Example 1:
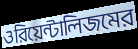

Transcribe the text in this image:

ওরিয়েন্টালিজমের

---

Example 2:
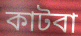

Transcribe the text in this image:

কাটবা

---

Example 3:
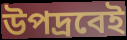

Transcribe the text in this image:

উপদ্রবেই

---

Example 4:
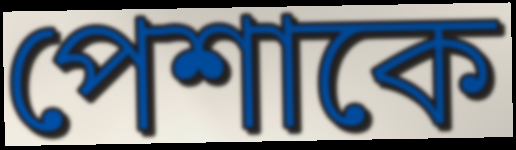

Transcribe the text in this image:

পেশাকে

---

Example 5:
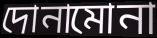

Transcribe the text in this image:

দোনামোনা